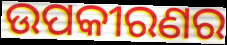
ଉପକୀରଣର